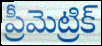
ప్రీమెట్రిక్